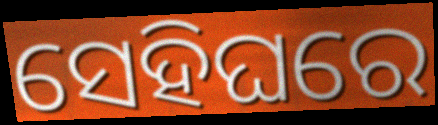
ସେହିଘରେ